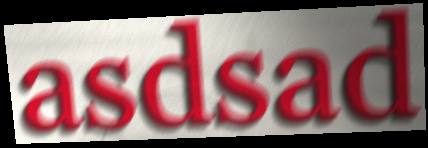
asdsad